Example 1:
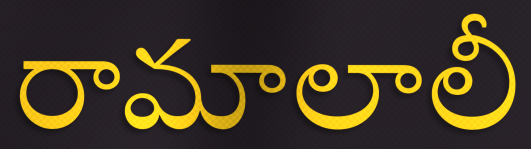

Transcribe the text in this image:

రామాలాలీ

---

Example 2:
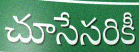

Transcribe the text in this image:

చూసేసరికీ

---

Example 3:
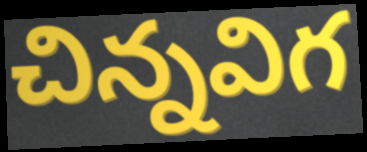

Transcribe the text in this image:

చిన్నవిగ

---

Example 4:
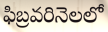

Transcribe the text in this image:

ఫిబ్రవరినెలలో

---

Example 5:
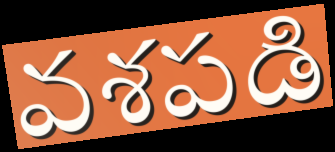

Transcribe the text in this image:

వశపడి